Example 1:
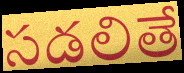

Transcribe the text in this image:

సడలితే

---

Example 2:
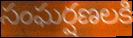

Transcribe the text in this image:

సంఘర్షణలకి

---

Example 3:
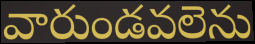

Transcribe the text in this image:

వారుండవలెను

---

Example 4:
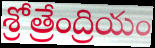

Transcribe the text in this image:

శ్రోత్రేంద్రియం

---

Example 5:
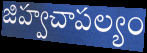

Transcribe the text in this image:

జిహ్వచాపల్యం